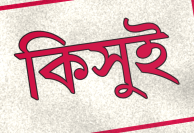
কিসুই